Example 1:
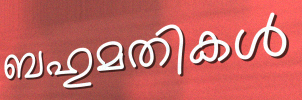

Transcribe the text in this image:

ബഹുമതികൾ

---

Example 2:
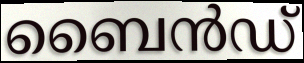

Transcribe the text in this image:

ബൈൻഡ്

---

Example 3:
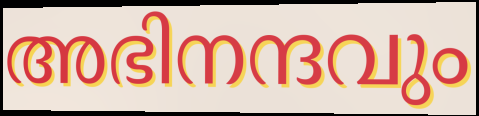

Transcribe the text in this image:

അഭിനന്ദവും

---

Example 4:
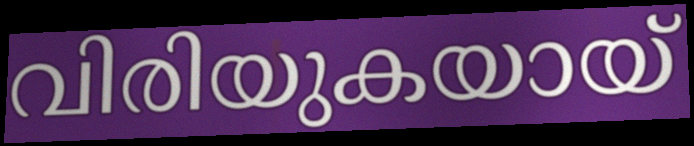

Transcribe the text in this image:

വിരിയുകയായ്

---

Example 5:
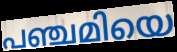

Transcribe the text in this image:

പഞ്ചമിയെ